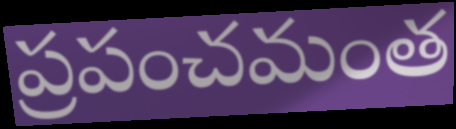
ప్రపంచమంత